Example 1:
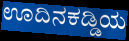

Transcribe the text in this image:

ಊದಿನಕಡ್ಡಿಯ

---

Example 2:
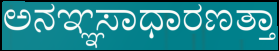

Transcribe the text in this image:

ಅನಞ್ಞಸಾಧಾರಣತ್ತಾ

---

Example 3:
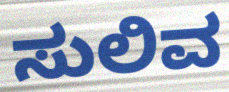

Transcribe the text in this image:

ಸುಲಿವ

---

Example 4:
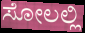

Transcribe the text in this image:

ಸೋಲಲ್ಲಿ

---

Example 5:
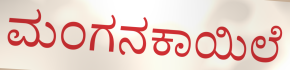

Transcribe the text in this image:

ಮಂಗನಕಾಯಿಲೆ